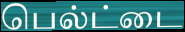
பெல்ட்டை